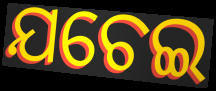
ଯଚେଇ